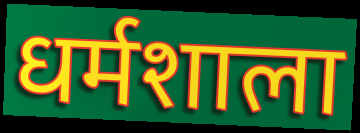
धर्मशाला